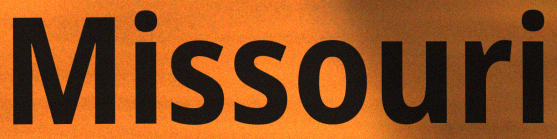
Missouri